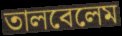
তালবেলেম